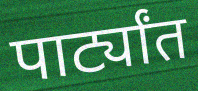
पार्ट्यांत